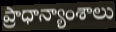
ప్రాధాన్యాంశాలు